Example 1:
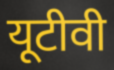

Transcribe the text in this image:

यूटीवी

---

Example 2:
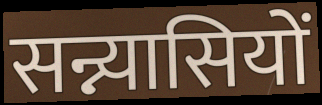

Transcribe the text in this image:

सन्न्यासियों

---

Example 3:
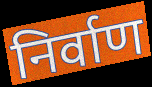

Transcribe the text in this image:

निर्वाण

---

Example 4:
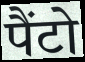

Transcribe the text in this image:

पैंटो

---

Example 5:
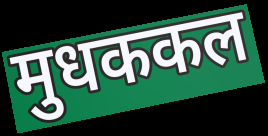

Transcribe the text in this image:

मुधककल